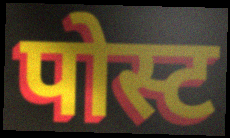
पोस्ट